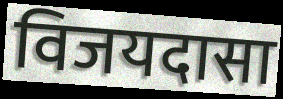
विजयदासा